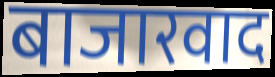
बाजारवाद